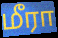
மீரா